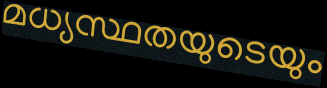
മധ്യസ്ഥതയുടെയും